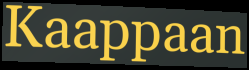
Kaappaan